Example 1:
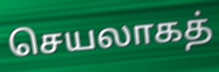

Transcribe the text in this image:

செயலாகத்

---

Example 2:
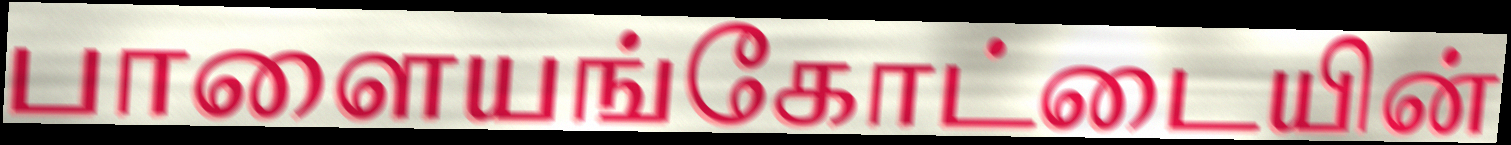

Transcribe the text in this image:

பாளையங்கோட்டையின்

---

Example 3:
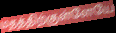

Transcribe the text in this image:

மதத்திற்குள்ளேயே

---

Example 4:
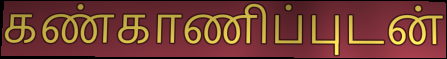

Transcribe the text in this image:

கண்காணிப்புடன்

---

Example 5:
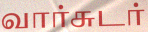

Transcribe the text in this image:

வார்சுடர்